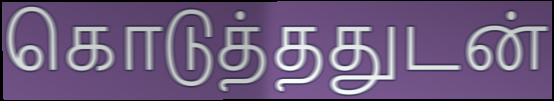
கொடுத்ததுடன்